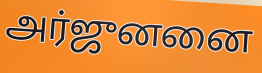
அர்ஜுனனை